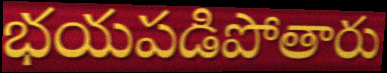
భయపడిపోతారు